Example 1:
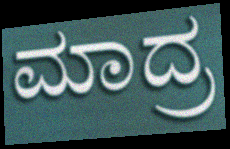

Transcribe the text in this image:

ಮಾದ್ರ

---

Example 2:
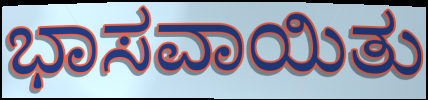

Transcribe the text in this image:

ಭಾಸವಾಯಿತು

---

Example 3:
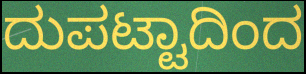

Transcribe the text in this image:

ದುಪಟ್ಟಾದಿಂದ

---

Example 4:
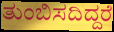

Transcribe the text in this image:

ತುಂಬಿಸದಿದ್ದರೆ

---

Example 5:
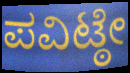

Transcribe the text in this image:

ಪವಿಟ್ಠೇ